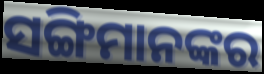
ସଙ୍ଗିମାନଙ୍କର